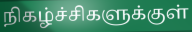
நிகழ்ச்சிகளுக்குள்